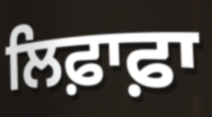
ਲਿਫ਼ਾਫ਼ਾ